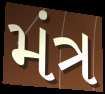
મંત્ર